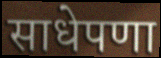
साधेपणा